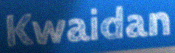
Kwaidan